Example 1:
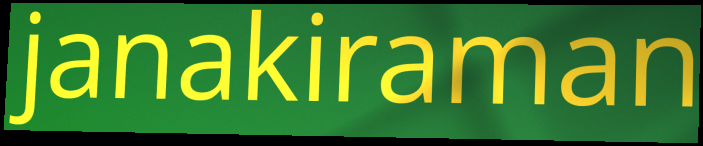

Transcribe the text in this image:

janakiraman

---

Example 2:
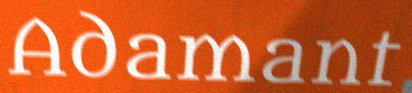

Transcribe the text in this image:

Adamant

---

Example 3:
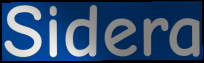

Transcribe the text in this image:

Sidera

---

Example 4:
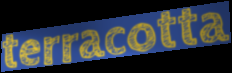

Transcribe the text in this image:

terracotta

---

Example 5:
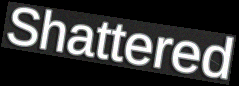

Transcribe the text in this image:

Shattered